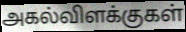
அகல்விளக்குகள்